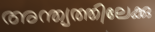
അന്ത്യത്തിലേക്കു